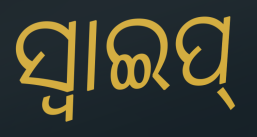
ସ୍ୱାଇପ୍